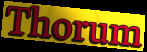
Thorum